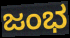
ಜಂಭ